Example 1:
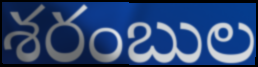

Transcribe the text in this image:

శరంబుల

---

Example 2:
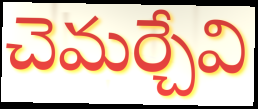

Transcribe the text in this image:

చెమర్చేవి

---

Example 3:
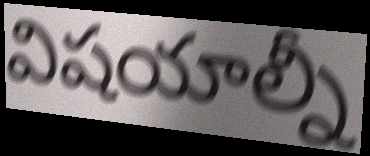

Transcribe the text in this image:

విషయాల్నీ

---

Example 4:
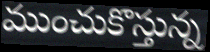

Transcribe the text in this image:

ముంచుకొస్తున్న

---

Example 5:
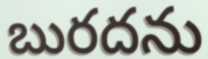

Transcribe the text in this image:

బురదను